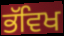
ਭੱਵਿਖ